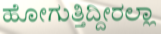
ಹೋಗುತ್ತಿದ್ದೀರಲ್ಲಾ